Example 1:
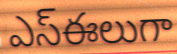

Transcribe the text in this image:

ఎస్ఈలుగా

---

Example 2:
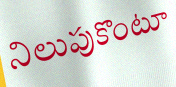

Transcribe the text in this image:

నిలుపుకొంటూ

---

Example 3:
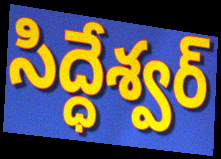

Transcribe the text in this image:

సిద్ధేశ్వర్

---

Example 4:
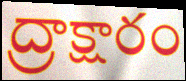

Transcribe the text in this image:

ద్రాక్షారం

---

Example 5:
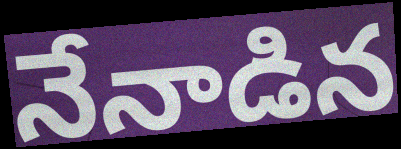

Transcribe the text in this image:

నేనాడిన